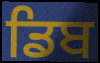
ਡਿਬ